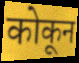
कोकून